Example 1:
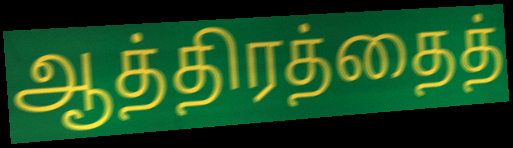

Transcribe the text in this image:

ஆத்திரத்தைத்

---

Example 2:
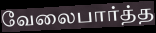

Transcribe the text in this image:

வேலைபார்த்த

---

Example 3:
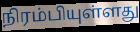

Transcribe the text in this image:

நிரம்பியுள்ளது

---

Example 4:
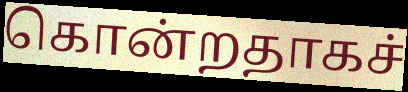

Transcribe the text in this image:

கொன்றதாகச்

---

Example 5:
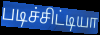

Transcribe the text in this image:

படிச்சிட்டியா